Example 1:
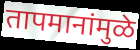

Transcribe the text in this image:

तापमानांमुळे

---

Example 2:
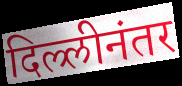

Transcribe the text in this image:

दिल्लीनंतर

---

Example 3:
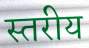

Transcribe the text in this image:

स्तरीय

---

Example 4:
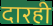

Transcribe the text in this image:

दारही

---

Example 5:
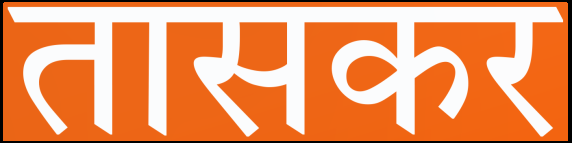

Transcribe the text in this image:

तासकर